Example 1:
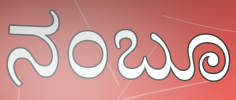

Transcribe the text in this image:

ನಂಬೂ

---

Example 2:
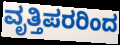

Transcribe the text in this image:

ವೃತ್ತಿಪರರಿಂದ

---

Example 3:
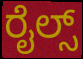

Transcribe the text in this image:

ರೈಲ್ಸ್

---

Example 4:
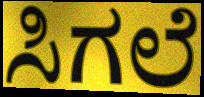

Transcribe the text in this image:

ಸಿಗಲೆ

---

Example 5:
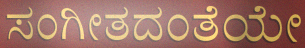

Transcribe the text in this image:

ಸಂಗೀತದಂತೆಯೇ